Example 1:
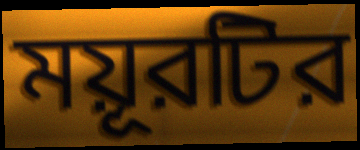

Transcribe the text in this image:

ময়ূরটির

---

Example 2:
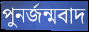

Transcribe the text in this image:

পুনর্জন্মবাদ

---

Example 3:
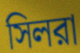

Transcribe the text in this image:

সিলরা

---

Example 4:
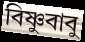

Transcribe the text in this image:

বিষ্ণুবাবু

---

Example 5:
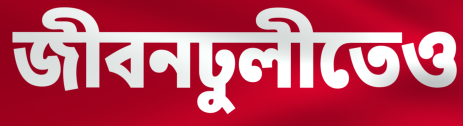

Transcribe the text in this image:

জীবনঢুলীতেও